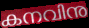
കനവിനു